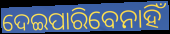
ଦେଇପାରିବେନାହିଁ